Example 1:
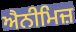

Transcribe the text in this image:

ਐਨੀਮਿਜ਼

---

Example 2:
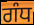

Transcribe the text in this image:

ਗੰਧ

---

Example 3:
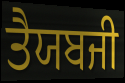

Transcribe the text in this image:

ਤੈਯਬਜੀ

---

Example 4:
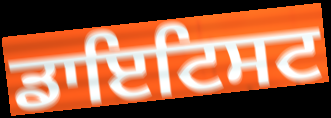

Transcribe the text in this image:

ਡਾਇਟਿਸਟ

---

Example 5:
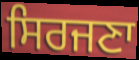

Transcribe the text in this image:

ਸਿਰਜਣਾ